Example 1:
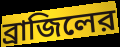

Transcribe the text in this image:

ব্রাজিলের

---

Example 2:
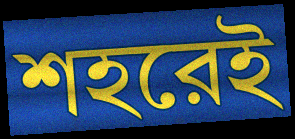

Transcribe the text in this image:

শহরেই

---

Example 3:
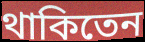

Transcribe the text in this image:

থাকিতেন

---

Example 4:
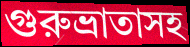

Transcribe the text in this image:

গুরুভ্রাতাসহ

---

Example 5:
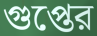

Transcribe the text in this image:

গুপ্তের